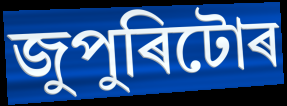
জুপুৰিটোৰ